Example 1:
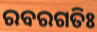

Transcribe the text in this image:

ରବରଗତିଃ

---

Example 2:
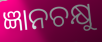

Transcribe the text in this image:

ଜ୍ଞାନଚକ୍ଷୁ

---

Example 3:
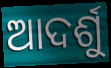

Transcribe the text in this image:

ଆଦର୍ଶୁ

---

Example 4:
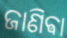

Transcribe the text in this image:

ଜାଣିଵା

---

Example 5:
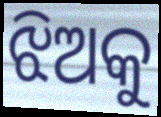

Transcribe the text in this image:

ଝିଅକୁ